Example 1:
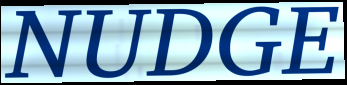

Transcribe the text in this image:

NUDGE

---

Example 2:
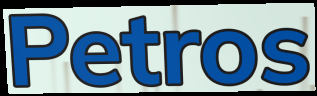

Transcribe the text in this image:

Petros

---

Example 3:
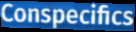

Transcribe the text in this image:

Conspecifics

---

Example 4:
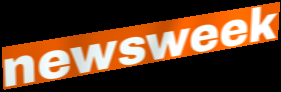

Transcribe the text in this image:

newsweek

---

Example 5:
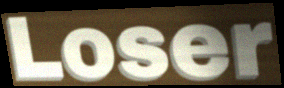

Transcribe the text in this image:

Loser